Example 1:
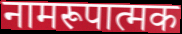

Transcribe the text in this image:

नामरूपात्मक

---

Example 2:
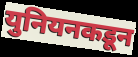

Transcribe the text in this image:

युनियनकडून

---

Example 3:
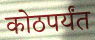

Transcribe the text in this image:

कोठपर्यंत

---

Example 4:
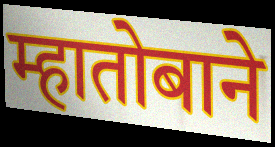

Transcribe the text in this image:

म्हातोबाने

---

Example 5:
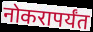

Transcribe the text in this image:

नोकरापर्यंत